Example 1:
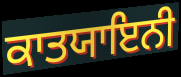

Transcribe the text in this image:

ਕਾਤਯਾਇਨੀ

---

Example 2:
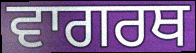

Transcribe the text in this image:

ਵਾਗਰਥ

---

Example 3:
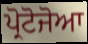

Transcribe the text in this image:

ਪ੍ਰੋਟੋਜੋਆ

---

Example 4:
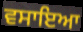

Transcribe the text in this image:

ਵਸਾਇਆ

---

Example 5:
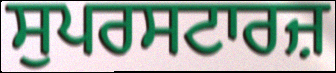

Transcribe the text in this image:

ਸੁਪਰਸਟਾਰਜ਼